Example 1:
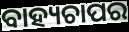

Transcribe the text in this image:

ବାହ୍ୟଚାପର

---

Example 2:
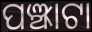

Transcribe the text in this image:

ପଞ୍ଝାଟା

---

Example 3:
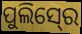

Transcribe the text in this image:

ପୁଲିସ୍‍ରେ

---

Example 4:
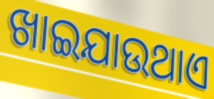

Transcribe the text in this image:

ଖାଇଯାଉଥାଏ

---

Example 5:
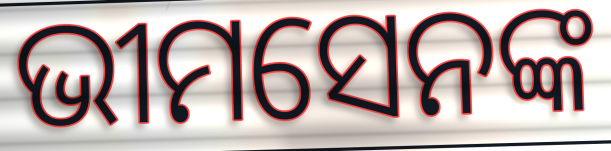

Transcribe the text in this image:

ଭୀମସେନଙ୍କ